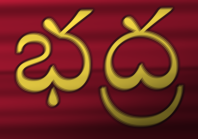
భద్ర